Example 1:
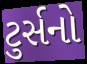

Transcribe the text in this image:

ટુર્સનો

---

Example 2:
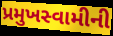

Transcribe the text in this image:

પ્રમુખસ્વામીની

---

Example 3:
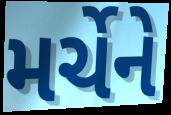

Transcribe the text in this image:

મર્ચેને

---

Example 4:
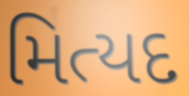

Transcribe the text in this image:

મિત્યદ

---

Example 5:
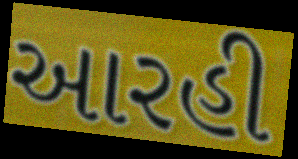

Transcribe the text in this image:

આરહી